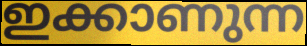
ഇക്കാണുന്ന